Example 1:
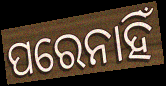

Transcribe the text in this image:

ପରେନାହିଁ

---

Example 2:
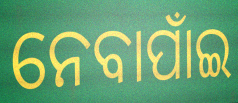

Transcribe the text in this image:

ନେବାପାଁଇ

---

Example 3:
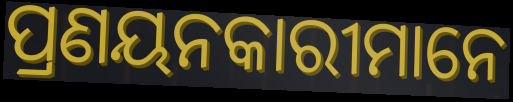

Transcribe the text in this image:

ପ୍ରଣୟନକାରୀମାନେ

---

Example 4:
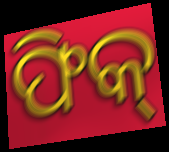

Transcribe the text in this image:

ଫିକ୍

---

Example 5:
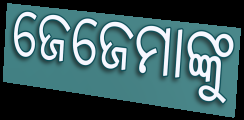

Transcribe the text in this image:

ଜେଜେମାଙ୍କୁ